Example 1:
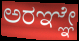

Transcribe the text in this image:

ಅರಞ್ಞೇ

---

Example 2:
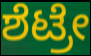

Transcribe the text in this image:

ಶೆಟ್ರೇ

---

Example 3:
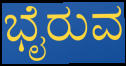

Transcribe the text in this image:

ಭೈರುವ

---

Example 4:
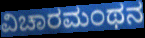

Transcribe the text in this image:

ವಿಚಾರಮಂಥನ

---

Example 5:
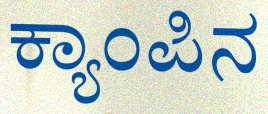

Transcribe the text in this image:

ಕ್ಯಾಂಪಿನ